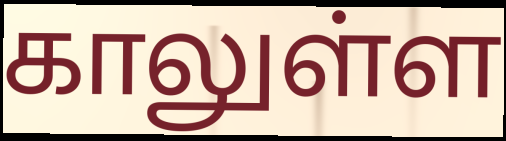
காலுள்ள